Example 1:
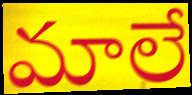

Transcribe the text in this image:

మాలే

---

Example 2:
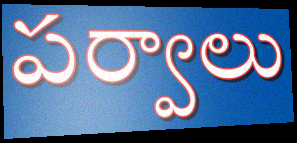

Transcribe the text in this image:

పర్వాలు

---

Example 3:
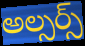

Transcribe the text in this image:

అల్సర్స్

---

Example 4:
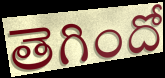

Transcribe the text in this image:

తెగిందో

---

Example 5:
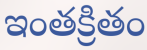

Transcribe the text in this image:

ఇంతక్రితం